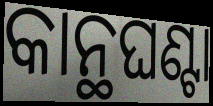
କାନ୍ଥଘଣ୍ଟା